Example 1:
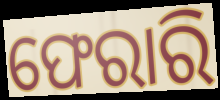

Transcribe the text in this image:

ଫେରାରି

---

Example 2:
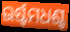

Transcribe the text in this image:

ଊର୍ଷ୍ଟମଧଶ୍ଚ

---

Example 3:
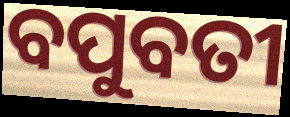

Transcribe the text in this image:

ବପୁବତୀ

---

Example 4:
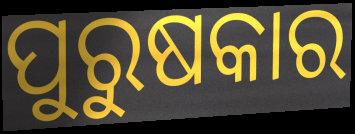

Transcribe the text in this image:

ପୁରୁଷକାର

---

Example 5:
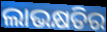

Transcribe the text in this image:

ଲାଭକ୍ଷତିର